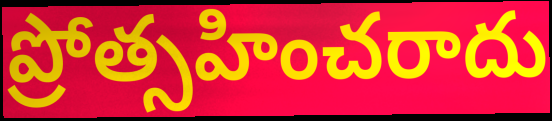
ప్రోత్సహించరాదు